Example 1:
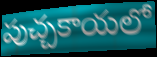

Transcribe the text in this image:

పుచ్చకాయలో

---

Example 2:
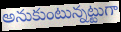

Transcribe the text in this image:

అనుకుంటున్నట్టుగా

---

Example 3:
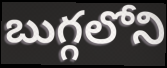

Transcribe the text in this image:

బుగ్గలోని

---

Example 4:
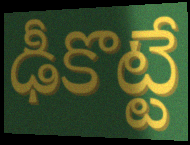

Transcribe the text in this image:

ఢీకొట్టే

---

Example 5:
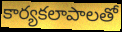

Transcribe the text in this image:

కార్యకలాపాలతో